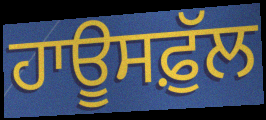
ਹਾਊਸਫ਼ੁੱਲ